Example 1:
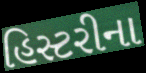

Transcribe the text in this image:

હિસ્ટરીના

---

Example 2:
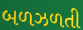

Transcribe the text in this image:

બળઝળતી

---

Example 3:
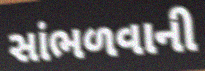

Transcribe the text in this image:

સાંભળવાની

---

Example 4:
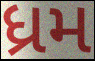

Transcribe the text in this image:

ધ્રમ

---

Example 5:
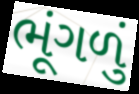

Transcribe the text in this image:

ભૂંગળું